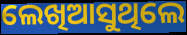
ଲେଖିଆସୁଥିଲେ